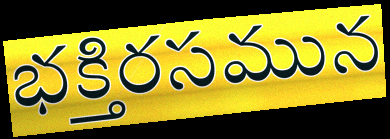
భక్తిరసమున